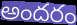
అందరం